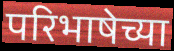
परिभाषेच्या